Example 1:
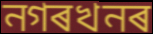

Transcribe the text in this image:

নগৰখনৰ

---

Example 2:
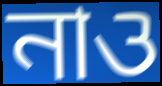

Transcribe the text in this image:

নাও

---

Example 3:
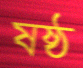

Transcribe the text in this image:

ষষ্ঠ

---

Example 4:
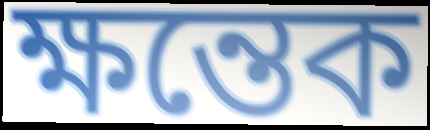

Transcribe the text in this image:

ক্ষন্তেক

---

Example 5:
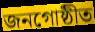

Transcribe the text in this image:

জনগোষ্ঠীত